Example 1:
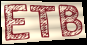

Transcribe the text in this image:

ETB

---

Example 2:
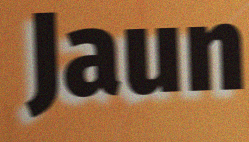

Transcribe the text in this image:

Jaun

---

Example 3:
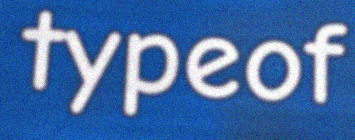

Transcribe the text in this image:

typeof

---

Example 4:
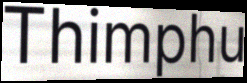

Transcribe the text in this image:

Thimphu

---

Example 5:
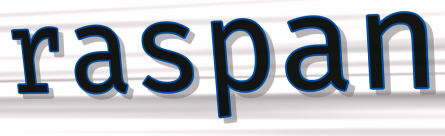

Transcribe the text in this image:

raspan